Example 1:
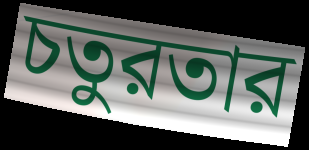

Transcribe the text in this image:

চতুরতার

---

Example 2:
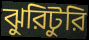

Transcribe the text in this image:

ঝুরিটুরি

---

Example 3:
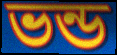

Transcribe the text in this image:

ভন্ড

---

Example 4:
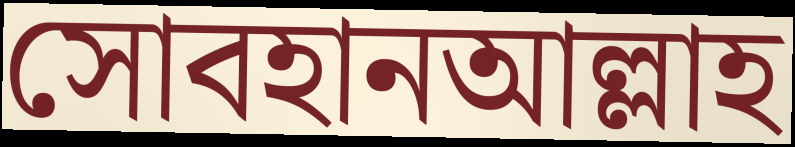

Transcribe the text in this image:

সোবহানআল্লাহ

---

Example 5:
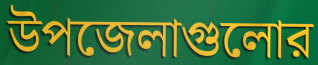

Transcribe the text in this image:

উপজেলাগুলোর